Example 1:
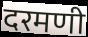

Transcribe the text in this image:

दरमणी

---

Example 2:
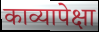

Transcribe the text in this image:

काव्यापेक्षा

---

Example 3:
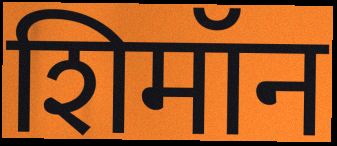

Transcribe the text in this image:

शिमॉन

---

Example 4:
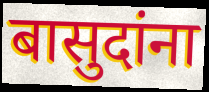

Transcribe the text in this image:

बासुदांना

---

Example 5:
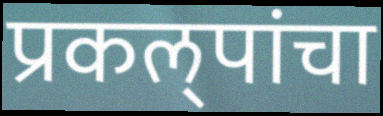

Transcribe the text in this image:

प्रकल्पांचा